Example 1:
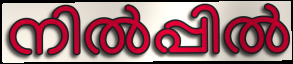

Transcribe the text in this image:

നിൽപ്പിൽ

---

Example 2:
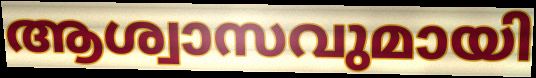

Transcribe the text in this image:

ആശ്വാസവുമായി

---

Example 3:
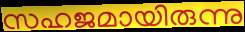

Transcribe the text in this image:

സഹജമായിരുന്നു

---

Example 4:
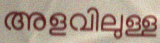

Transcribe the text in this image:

അളവിലുള്ള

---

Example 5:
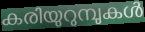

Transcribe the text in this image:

കരിയുറുമ്പുകൾ